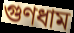
গুণধাম